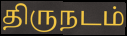
திருநடம்